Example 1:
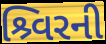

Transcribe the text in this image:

શ્ર્વિરની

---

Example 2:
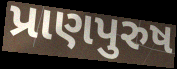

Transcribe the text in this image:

પ્રાણપુરુષ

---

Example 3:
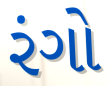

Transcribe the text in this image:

રંગો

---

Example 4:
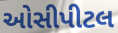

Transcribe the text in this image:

ઓસીપીટલ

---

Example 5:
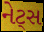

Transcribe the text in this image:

નેટ્સ